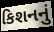
કિશનનું